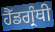
ਹੈੱਡਗ੍ਰੰਥੀ